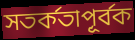
সতর্কতাপূর্বক